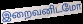
இறைவனிடமோ